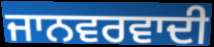
ਜਾਨਵਰਵਾਦੀ